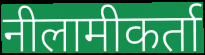
नीलामीकर्ता